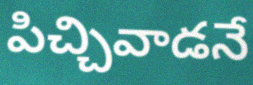
పిచ్చివాడనే